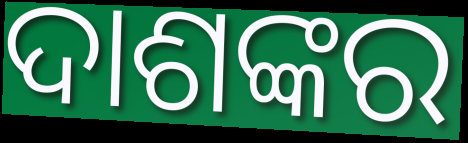
ଦାଶଙ୍କର